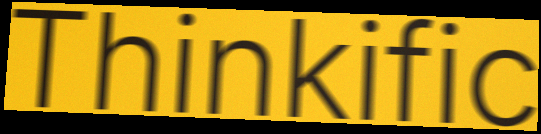
Thinkific